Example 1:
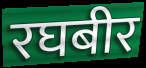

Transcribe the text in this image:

रघबीर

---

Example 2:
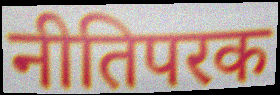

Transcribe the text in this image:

नीतिपरक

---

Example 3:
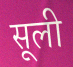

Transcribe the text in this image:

सूली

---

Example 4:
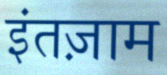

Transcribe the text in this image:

इंतज़ाम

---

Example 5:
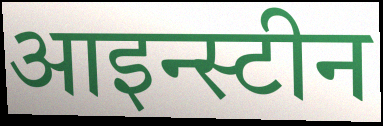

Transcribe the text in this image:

आइन्स्टीन